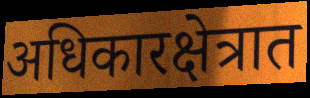
अधिकारक्षेत्रात